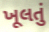
ખૂલતું